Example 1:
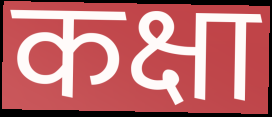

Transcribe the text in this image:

कक्षा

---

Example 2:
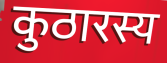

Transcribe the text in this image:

कुठारस्य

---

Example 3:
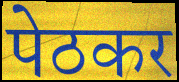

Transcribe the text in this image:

पेठकर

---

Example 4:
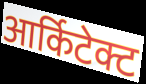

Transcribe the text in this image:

आर्किटेक्ट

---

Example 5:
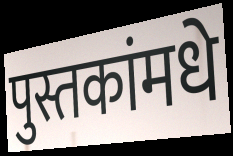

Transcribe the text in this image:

पुस्तकांमधे